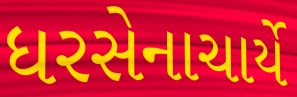
ધરસેનાચાર્યે